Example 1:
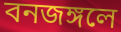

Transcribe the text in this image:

বনজঙ্গলে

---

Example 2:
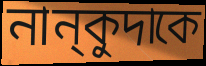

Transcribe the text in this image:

নান্‌কুদাকে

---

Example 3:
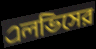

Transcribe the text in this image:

এলভিসের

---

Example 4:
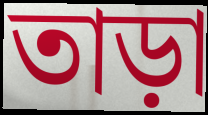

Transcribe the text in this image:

তাড়া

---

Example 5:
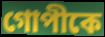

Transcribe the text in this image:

গোপীকে